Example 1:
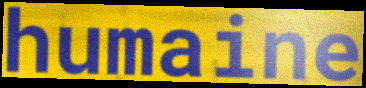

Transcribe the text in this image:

humaine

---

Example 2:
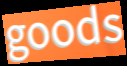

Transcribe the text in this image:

goods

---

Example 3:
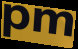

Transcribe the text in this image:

pm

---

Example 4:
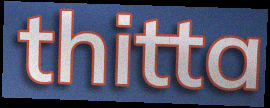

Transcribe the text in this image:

thitta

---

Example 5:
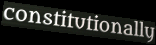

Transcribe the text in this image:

constitutionally